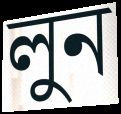
লুন